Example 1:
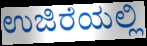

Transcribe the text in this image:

ಉಜಿರೆಯಲ್ಲಿ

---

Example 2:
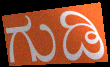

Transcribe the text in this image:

ಗುಡಿ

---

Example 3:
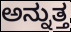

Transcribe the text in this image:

ಅನ್ನುತ್ತ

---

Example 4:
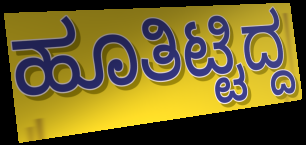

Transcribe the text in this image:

ಹೂತಿಟ್ಟಿದ್ದ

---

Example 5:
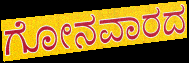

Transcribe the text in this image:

ಗೋನವಾರದ